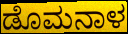
ಡೊಮನಾಳ